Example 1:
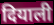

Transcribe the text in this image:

दियाली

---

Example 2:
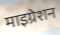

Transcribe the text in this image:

माइग्रेशन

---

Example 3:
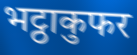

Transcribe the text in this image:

भट्ठाकुफर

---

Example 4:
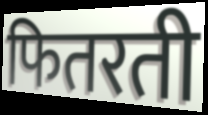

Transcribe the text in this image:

फितरती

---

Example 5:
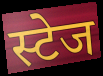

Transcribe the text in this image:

स्‍टेज